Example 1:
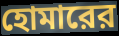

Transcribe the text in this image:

হোমারের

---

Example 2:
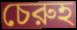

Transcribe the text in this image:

চেরুহ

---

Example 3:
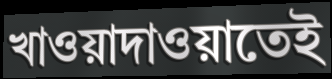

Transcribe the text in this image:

খাওয়াদাওয়াতেই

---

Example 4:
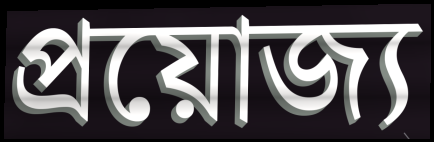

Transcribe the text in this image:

প্রয়োজ্য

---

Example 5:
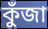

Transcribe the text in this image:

কুঁজা